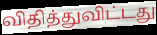
விதித்துவிட்டது